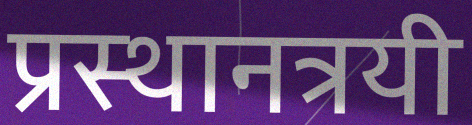
प्रस्थानत्रयी